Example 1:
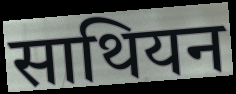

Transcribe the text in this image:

साथियन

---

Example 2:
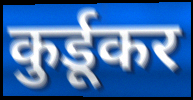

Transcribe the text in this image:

कुर्डूकर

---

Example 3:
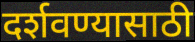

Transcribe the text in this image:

दर्शवण्यासाठी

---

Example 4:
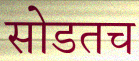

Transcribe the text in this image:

सोडतच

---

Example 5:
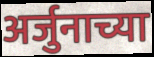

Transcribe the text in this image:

अर्जुनाच्या